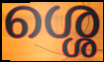
ശ്ശെ